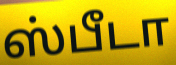
ஸ்பீடா